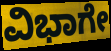
ವಿಭಾಗೇ